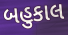
બહુકાલ